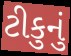
ટીકુનું